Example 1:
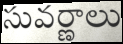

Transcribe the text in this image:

సువర్ణాలు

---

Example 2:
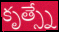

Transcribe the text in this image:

కృత్స్నే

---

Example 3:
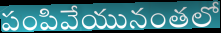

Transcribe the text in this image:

పంపివేయునంతలో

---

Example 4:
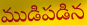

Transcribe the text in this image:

ముడిపడిన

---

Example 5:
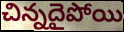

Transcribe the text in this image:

చిన్నదైపోయి